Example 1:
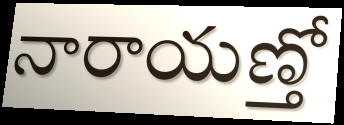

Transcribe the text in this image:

నారాయణ్తో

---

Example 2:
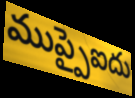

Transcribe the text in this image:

ముప్పైఐదు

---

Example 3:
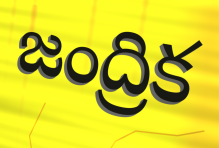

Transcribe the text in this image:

జంద్రిక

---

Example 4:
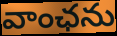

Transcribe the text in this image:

వాంఛను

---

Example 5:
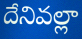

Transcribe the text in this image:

దేనివల్లా